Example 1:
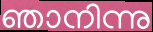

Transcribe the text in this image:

ഞാനിന്നു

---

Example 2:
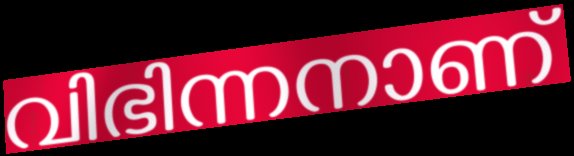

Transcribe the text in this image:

വിഭിന്നനാണ്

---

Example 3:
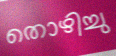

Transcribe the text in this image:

തൊഴിച്ചു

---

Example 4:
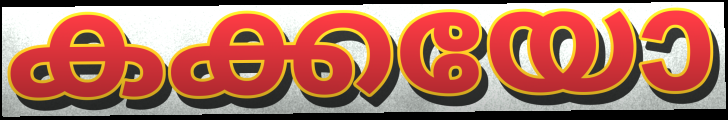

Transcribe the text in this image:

കക്കയോ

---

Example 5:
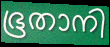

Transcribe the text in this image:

ഭൂതാനി